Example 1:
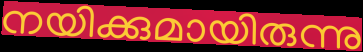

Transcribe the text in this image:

നയിക്കുമായിരുന്നു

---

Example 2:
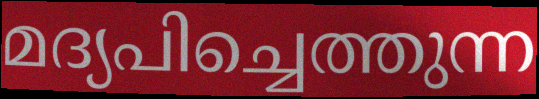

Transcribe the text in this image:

മദ്യപിച്ചെത്തുന്ന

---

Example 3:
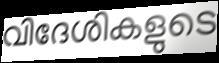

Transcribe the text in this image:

വിദേശികളുടെ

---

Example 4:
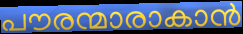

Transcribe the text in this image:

പൗരന്മാരാകാൻ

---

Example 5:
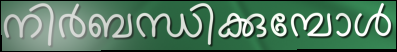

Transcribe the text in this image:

നിർബന്ധിക്കുമ്പോൾ